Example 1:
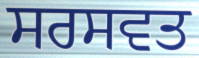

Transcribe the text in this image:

ਸਰਸਵਤ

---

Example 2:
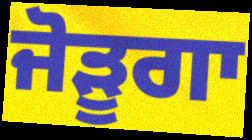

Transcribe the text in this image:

ਜੋੜੂਗਾ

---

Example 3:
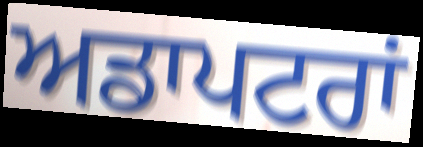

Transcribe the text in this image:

ਅਡਾਪਟਰਾਂ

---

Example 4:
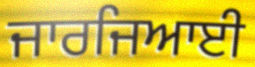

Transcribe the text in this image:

ਜਾਰਜਿਆਈ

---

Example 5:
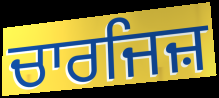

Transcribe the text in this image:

ਚਾਰਜਿਜ਼